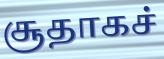
சூதாகச்